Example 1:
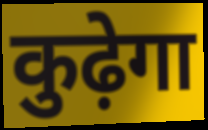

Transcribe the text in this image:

कुढ़ेगा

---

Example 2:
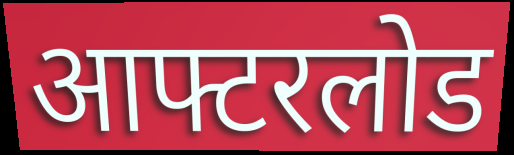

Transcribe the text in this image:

आफ्टरलोड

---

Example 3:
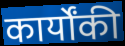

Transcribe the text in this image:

कार्योंकी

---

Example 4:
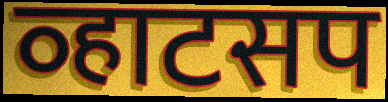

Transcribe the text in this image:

व्हाटसप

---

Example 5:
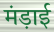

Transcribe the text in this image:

मंड़ाई